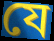
যে